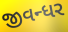
જીવન્ધર